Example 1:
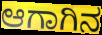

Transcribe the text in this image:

ಆಗಾಗಿನ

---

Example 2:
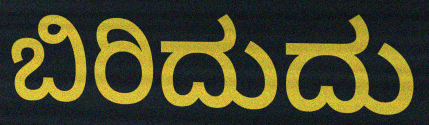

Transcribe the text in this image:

ಬಿರಿದುದು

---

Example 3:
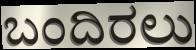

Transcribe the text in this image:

ಬಂದಿರಲು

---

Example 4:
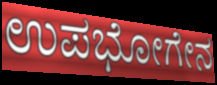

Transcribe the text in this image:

ಉಪಭೋಗೇನ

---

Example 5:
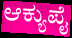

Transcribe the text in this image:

ಆಕ್ಯುಪೈ